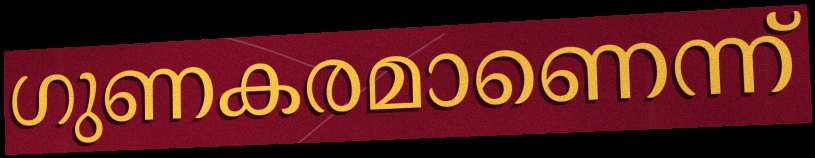
ഗുണകരമാണെന്ന്